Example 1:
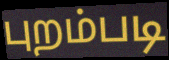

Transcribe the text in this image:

புறம்படி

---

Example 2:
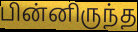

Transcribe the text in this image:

பின்னிருந்த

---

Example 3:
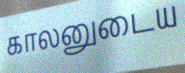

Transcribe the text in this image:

காலனுடைய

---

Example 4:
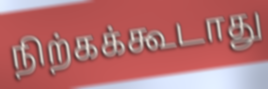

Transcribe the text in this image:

நிற்கக்கூடாது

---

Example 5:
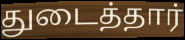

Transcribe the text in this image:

துடைத்தார்